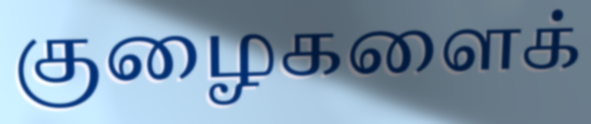
குழைகளைக்